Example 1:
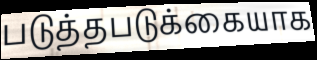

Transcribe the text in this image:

படுத்தபடுக்கையாக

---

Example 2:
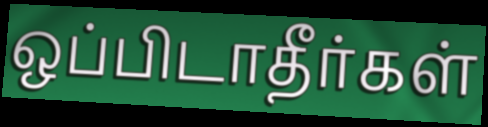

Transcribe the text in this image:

ஒப்பிடாதீர்கள்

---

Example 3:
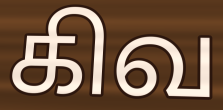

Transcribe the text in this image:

கிவ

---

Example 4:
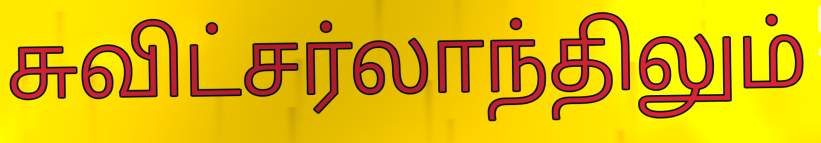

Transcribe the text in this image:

சுவிட்சர்லாந்திலும்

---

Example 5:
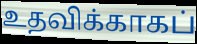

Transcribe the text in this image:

உதவிக்காகப்